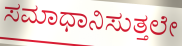
ಸಮಾಧಾನಿಸುತ್ತಲೇ